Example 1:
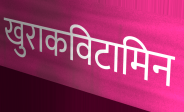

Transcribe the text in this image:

खुराकविटामिन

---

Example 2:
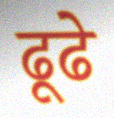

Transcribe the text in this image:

ढूढे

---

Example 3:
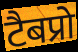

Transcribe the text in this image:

टैबप्रो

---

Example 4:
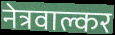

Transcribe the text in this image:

नेत्रवाल्कर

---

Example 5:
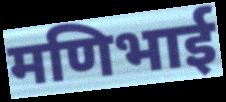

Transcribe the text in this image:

मणिभाई